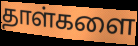
தாள்களை